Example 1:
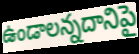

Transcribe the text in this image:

ఉండాలన్నదానిపై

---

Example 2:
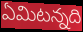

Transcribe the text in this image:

ఏమిటన్నది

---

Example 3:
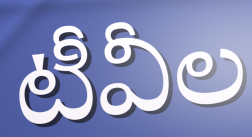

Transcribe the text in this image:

టీవీల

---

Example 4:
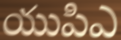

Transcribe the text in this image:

యుపిఎ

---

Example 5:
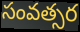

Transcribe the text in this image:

సంవత్సర